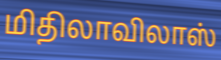
மிதிலாவிலாஸ்